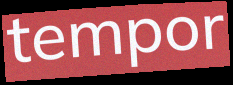
tempor